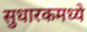
सुधारकमध्ये